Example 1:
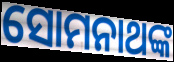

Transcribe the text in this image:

ସୋମନାଥଙ୍କ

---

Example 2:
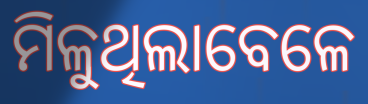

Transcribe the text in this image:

ମିଳୁଥିଲାବେଳେ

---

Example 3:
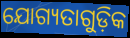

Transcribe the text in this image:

ଯୋଗ୍ୟତାଗୁଡ଼ିକ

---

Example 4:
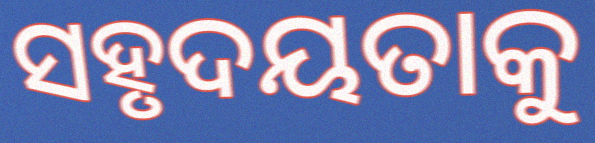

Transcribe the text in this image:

ସହୃଦୟତାକୁ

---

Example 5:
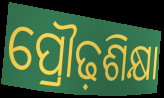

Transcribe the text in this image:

ପ୍ରୌଢ଼ଶିକ୍ଷା